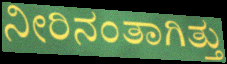
ನೀರಿನಂತಾಗಿತ್ತು